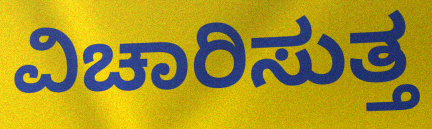
ವಿಚಾರಿಸುತ್ತ